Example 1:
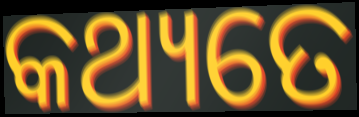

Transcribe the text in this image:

କଥ୍ୟତେ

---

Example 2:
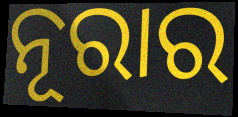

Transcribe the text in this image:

ନୂରାର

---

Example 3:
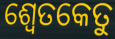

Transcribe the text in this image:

ଶ୍ୱେତକେତୁ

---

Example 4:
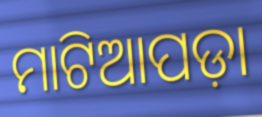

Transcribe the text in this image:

ମାଟିଆପଡ଼ା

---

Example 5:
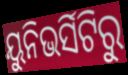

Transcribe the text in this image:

ୟୁନିଭର୍ସିଟିରୁ